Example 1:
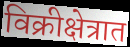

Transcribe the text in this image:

विक्रीक्षेत्रात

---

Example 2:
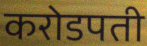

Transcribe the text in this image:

करोडपती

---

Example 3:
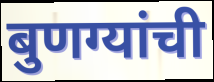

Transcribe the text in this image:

बुणग्यांची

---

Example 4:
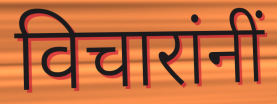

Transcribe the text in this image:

विचारांनीं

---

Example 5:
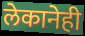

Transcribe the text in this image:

लेकानेही